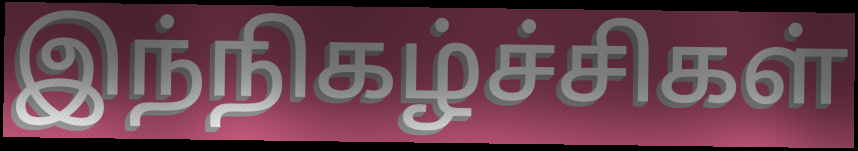
இந்நிகழ்ச்சிகள்